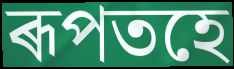
ৰূপতহে